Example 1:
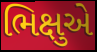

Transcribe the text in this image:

ભિક્ષુએ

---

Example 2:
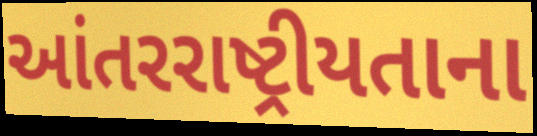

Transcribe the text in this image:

આંતરરાષ્ટ્રીયતાના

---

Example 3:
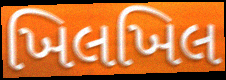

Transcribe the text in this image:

ખિલખિલ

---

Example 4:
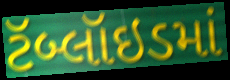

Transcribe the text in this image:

ટૅબ્લૉઇડમાં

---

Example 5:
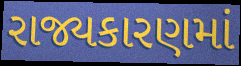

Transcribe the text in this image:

રાજ્યકારણમાં